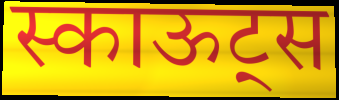
स्काऊट्स